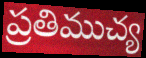
ప్రతిముచ్య